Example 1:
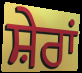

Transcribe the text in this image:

ਸ਼ੇਰਾਂ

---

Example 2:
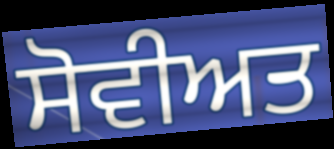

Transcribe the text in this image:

ਸੋਵੀਅਤ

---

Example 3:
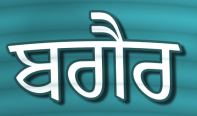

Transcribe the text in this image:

ਬਗੈਰ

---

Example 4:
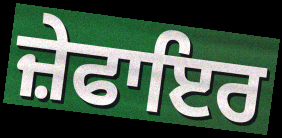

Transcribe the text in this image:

ਜ਼ੇਫਾਇਰ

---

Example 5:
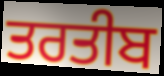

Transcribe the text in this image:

ਤਰਤੀਬ